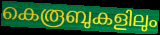
കെരൂബുകളിലും